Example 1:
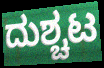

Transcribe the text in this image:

ದುಶ್ಚಟ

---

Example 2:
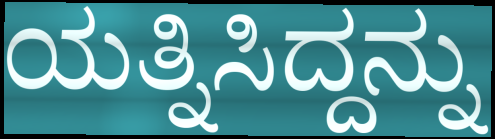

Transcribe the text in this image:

ಯತ್ನಿಸಿದ್ದನ್ನು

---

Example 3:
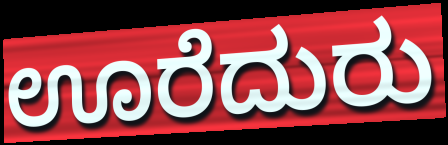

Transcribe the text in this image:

ಊರೆದುರು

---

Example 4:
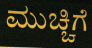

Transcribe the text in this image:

ಮುಚ್ಚಿಗೆ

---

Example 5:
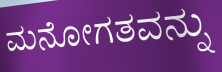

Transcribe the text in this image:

ಮನೋಗತವನ್ನು